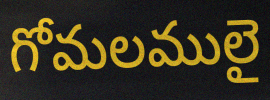
గోమలములై